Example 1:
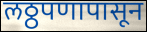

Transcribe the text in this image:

लठ्ठपणापासून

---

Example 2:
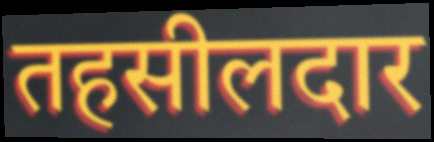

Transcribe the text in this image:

तहसीलदार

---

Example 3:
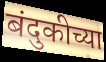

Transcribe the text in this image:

बंदुकीच्या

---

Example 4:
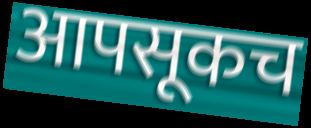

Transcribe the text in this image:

आपसूकच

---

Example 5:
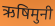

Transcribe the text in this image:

ऋषिमुनी